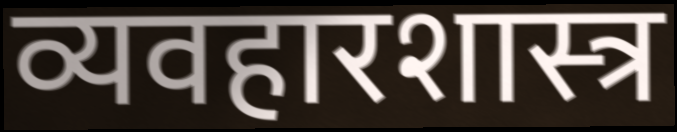
व्यवहारशास्त्र